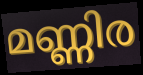
മണ്ണിര